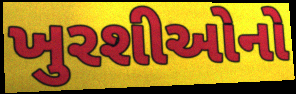
ખુરશીઓનો